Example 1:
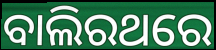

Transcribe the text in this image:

ବାଲିରଥରେ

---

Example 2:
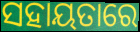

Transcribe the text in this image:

ସହାୟତାରେ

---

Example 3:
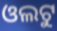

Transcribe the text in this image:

ଓଲଟୁ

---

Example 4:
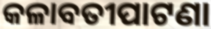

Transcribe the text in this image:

କଳାବତୀପାଟଣା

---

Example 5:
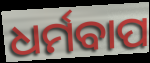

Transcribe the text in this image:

ଧର୍ମବାପ